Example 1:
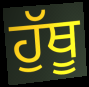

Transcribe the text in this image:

ਹੁੱਥੂ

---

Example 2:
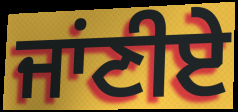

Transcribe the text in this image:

ਜਾਂਣੀਏ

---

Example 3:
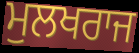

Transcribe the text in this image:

ਮੁਲਖਰਾਜ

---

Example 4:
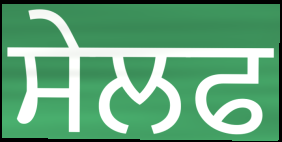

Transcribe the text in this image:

ਸੇਲਫ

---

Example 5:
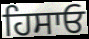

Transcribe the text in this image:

ਹਿਸਾਓ